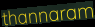
thannaram